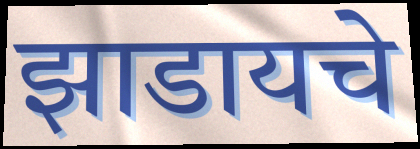
झाडायचे